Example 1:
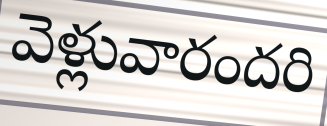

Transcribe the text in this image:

వెళ్లువారందరి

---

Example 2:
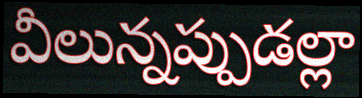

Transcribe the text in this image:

వీలున్నప్పుడల్లా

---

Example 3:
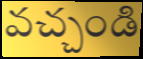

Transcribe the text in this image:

వచ్చండి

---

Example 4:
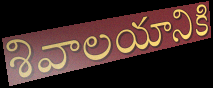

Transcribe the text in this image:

శివాలయానికి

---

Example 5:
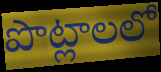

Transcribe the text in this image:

పొట్లాలలో